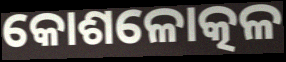
କୋଶଳୋତ୍କଳ